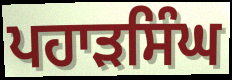
ਪਹਾੜਸਿੰਘ